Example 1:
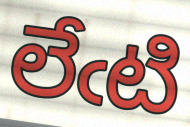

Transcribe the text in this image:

లేఁటి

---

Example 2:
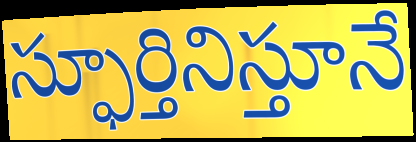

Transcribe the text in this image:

స్ఫూర్తినిస్తూనే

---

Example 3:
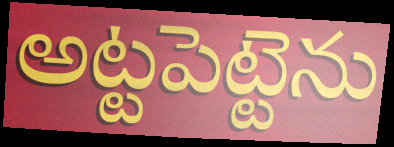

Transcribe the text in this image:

అట్టపెట్టెను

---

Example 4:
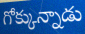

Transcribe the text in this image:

గోక్కున్నాడు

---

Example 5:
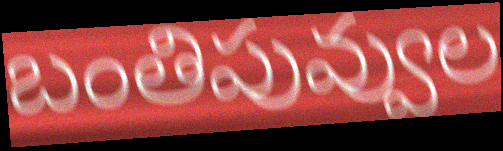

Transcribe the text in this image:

బంతిపువ్వుల